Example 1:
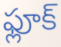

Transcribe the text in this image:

ఫ్లూక్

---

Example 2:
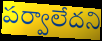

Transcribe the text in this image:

పర్వాలేదని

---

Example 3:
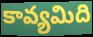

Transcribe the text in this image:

కావ్యమిది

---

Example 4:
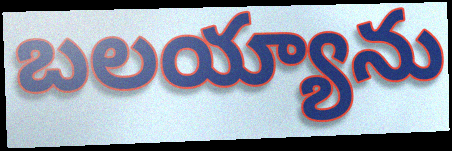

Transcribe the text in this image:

బలయ్యాను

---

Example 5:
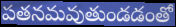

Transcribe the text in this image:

పతనమవుతుండడంతో